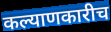
कल्याणकारीच